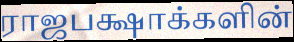
ராஜபக்ஷாக்களின்